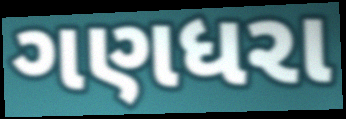
ગણધરા